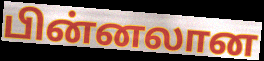
பின்னலான